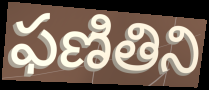
ఫణితిని